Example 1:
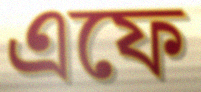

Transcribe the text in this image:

এফে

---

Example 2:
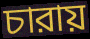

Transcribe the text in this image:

চারায়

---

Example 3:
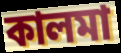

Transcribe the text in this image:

কালমা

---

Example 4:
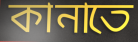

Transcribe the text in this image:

কানাতে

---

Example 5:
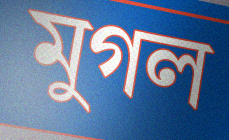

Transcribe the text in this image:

মুগল